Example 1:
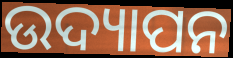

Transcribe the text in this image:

ଉଦ୍ୟାପନ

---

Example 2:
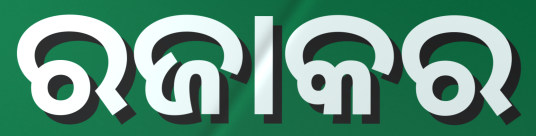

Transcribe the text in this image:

ରଜାକର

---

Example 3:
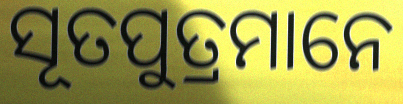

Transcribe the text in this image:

ସୂତପୁତ୍ରମାନେ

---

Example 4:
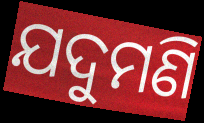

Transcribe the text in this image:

ଯଦୁମଣି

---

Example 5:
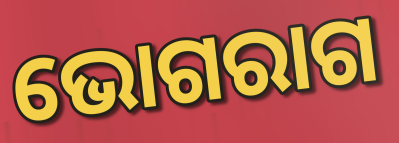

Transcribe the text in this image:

ଭୋଗରାଗ